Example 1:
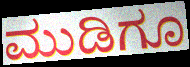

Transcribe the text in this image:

ಮುಡಿಗೂ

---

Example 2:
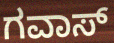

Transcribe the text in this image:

ಗವಾಸ್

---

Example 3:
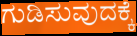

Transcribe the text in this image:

ಗುಡಿಸುವುದಕ್ಕೆ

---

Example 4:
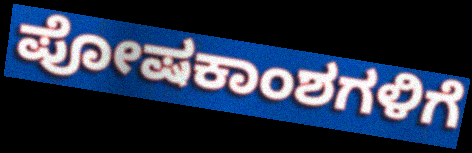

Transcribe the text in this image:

ಪೋಷಕಾಂಶಗಳಿಗೆ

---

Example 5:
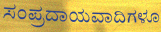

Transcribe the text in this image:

ಸಂಪ್ರದಾಯವಾದಿಗಳೂ